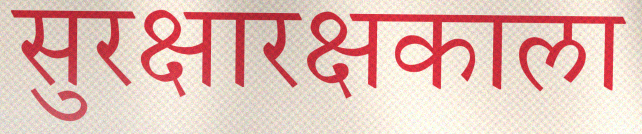
सुरक्षारक्षकाला